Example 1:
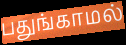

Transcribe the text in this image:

பதுங்காமல்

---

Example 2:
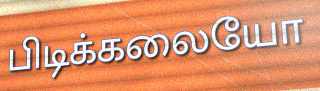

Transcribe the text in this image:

பிடிக்கலையோ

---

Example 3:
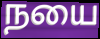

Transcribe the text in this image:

நயை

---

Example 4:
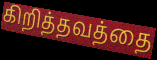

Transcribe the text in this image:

கிறித்தவத்தை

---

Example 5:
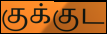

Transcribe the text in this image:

குக்குட